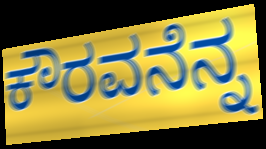
ಕೌರವನೆನ್ನ